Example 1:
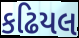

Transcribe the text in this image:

કઢિયલ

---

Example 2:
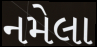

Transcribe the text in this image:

નમેલા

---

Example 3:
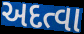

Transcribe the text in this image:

અદત્વા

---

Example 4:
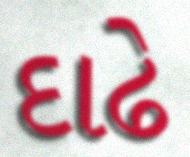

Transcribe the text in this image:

દાઢે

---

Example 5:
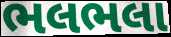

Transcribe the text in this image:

ભલભલા